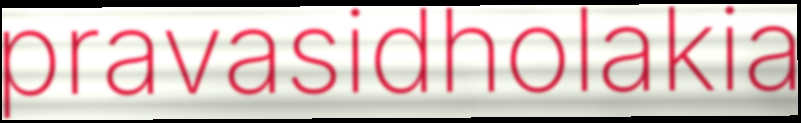
pravasidholakia